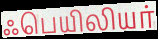
ஃபெயிலியர்